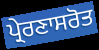
ਪ੍ਰੇਰਣਾਸਰੋਤ